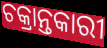
ଚକ୍ରାନ୍ତକାରୀ